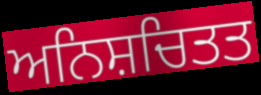
ਅਨਿਸ਼ਚਿਤਤ